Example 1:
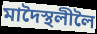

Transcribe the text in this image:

মাদৈস্থলীলৈ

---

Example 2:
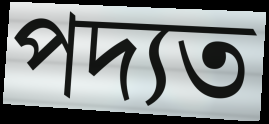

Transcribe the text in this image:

পদ্যত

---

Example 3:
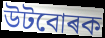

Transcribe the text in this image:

উটবোৰক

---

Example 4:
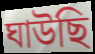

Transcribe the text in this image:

ঘাউছি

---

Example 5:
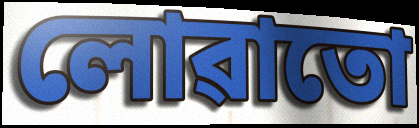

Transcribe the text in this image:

লোৱাতো